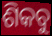
ଶିକବୁ